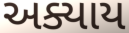
અક્યાય